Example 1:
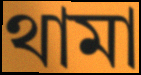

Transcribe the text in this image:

থামা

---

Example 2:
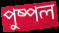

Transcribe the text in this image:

পুষ্পল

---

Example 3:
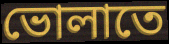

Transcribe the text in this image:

ভোলাতে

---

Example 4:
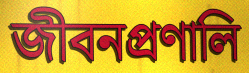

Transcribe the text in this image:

জীবনপ্রণালি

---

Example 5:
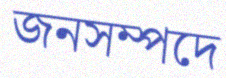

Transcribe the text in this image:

জনসম্পদে